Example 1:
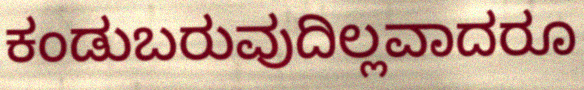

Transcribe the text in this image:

ಕಂಡುಬರುವುದಿಲ್ಲವಾದರೂ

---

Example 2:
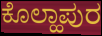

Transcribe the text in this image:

ಕೊಲ್ಹಾಪುರ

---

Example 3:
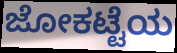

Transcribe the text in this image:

ಜೋಕಟ್ಟೆಯ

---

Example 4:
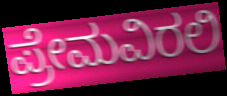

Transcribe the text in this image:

ಪ್ರೇಮವಿರಲಿ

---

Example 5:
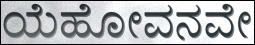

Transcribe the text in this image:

ಯೆಹೋವನವೇ